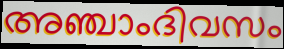
അഞ്ചാംദിവസം